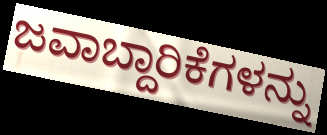
ಜವಾಬ್ದಾರಿಕೆಗಳನ್ನು